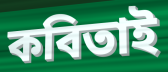
কবিতাই